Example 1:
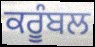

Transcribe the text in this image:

ਕਰੂੰਬਲ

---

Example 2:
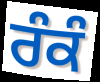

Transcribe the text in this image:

ਰੰਕੰ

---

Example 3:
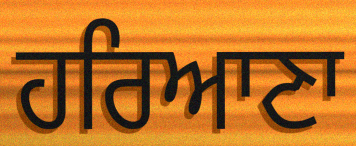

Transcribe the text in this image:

ਹਰਿਆਣਾ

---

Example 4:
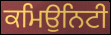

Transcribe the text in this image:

ਕਮਿਉਨਿਟੀ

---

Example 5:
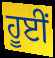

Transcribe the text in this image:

ਹੂਈਂ